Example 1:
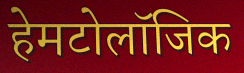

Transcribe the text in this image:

हेमटोलॉजिक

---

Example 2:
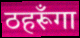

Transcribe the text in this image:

ठहरूँगा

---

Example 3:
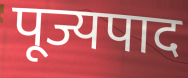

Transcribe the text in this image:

पूज्यपाद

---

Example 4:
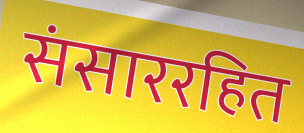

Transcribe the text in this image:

संसाररहित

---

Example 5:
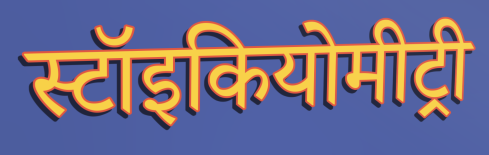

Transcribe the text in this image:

स्टॉइकियोमीट्री